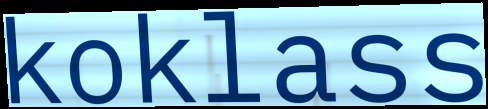
koklass